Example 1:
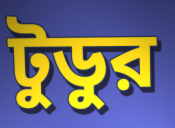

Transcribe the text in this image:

টুডুর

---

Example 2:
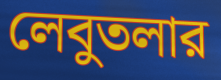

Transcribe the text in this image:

লেবুতলার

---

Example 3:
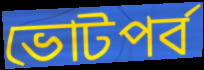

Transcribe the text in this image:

ভোটপর্ব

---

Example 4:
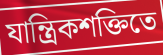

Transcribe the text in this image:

যান্ত্রিকশক্তিতে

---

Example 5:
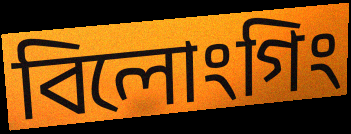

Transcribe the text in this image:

বিলোংগিং